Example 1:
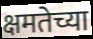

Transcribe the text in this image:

क्षमतेच्या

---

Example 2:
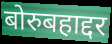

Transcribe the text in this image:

बोरुबहाद्दर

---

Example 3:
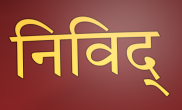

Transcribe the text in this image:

निविद्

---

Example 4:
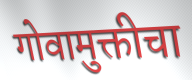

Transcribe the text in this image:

गोवामुक्तीचा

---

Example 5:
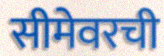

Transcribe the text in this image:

सीमेवरची